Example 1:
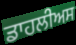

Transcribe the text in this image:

ਡਾਹਲੀਅਸ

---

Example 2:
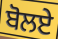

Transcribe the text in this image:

ਬੋਲਏ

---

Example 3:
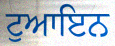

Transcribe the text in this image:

ਟੁਆਇਨ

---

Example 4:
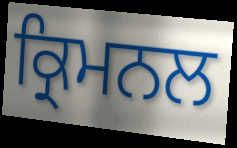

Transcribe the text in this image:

ਕ੍ਰਿਮਨਲ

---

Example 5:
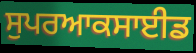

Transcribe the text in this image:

ਸੁਪਰਆਕਸਾਈਡ